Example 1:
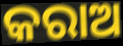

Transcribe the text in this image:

କରାଅ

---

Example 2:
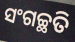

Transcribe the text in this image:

ସଂଗଚ୍ଛତି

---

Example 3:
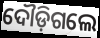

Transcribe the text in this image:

ଦୌଡ଼ିଗଲେ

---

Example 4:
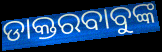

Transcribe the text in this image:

ଡାକ୍ତରବାବୁଙ୍କ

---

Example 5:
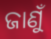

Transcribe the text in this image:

ଜାଣୁଁ